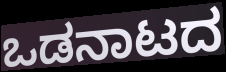
ಒಡನಾಟದ